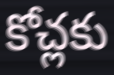
కోచ్లకు